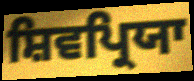
ਸ਼ਿਵਪ੍ਰਿਯਾ